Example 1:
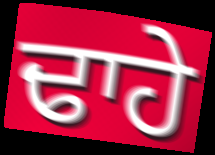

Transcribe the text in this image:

ਢਾਹੇ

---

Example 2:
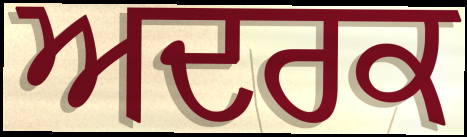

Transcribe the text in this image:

ਅਦਰਕ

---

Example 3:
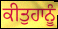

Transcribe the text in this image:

ਕੀਤੁਹਾਨੂੰ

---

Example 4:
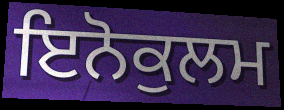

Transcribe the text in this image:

ਇਨੋਕੁਲਮ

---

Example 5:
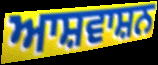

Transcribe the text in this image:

ਆਸ਼ਵਾਸ਼ਨ